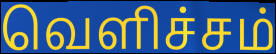
வெளிச்சம்